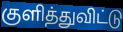
குளித்துவிட்டு